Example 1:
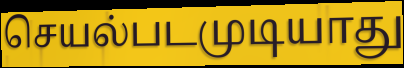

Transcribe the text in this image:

செயல்படமுடியாது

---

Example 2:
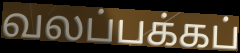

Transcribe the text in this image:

வலப்பக்கப்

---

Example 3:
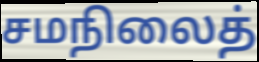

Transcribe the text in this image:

சமநிலைத்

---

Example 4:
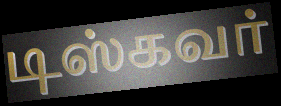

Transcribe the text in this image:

டிஸ்கவர்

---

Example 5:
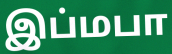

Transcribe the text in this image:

இப்மபா